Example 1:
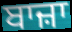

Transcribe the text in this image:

ਬਾਜ਼ਾ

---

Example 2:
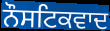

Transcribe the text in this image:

ਨੌਸਟਿਕਵਾਦ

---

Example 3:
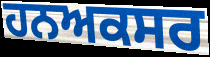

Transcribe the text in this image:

ਹਨਅਕਸਰ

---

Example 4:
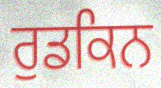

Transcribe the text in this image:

ਰੁਡਕਿਨ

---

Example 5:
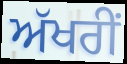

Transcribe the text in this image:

ਅੱਖਰੀਂ